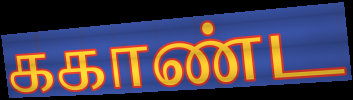
ககாண்ட